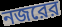
নজরের